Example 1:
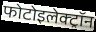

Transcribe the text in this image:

फोटोइलेक्ट्रॉन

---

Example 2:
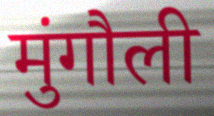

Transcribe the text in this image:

मुंगौली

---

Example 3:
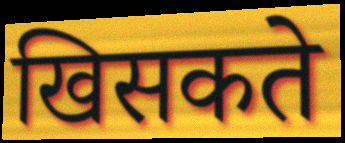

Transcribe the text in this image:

खिसकते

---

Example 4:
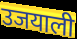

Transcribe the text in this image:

उजयाली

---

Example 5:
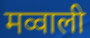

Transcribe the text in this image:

मव्वाली